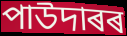
পাউদাৰৰ